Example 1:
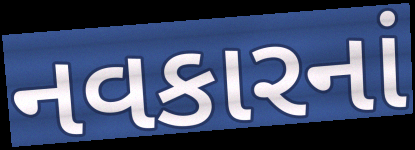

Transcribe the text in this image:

નવકારનાં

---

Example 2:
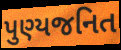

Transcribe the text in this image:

પુણ્યજનિત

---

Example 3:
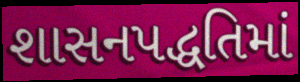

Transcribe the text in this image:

શાસનપદ્ધતિમાં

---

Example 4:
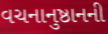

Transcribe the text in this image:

વચનાનુષ્ઠાનની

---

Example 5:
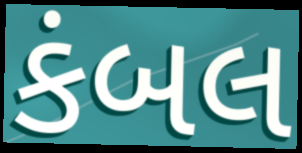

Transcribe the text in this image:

કંબલ